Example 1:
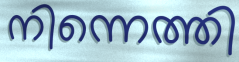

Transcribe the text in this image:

നിന്നെത്തി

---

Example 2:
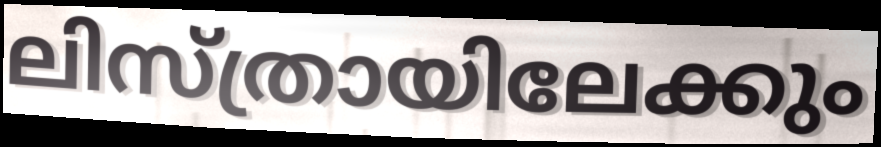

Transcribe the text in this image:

ലിസ്ത്രായിലേക്കും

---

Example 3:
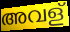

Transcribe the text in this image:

അവള്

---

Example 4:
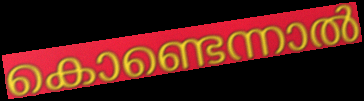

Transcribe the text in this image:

കൊണ്ടെന്നാൽ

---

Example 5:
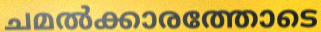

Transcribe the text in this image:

ചമൽക്കാരത്തോടെ